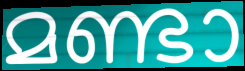
മണ്ടാ